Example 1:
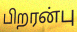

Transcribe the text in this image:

பிறரன்பு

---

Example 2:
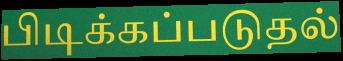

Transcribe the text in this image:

பிடிக்கப்படுதல்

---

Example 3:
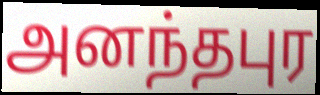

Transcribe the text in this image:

அனந்தபுர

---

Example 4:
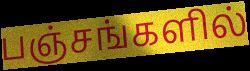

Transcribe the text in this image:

பஞ்சங்களில்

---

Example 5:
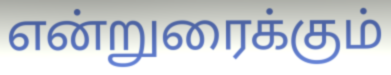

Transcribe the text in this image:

என்றுரைக்கும்